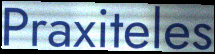
Praxiteles